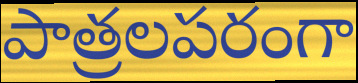
పాత్రలపరంగా